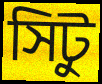
সিটু